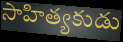
సాహిత్యకుడు